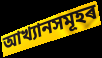
আখ্যানসমূহৰ